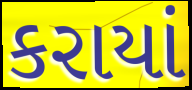
કરાયાં